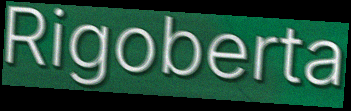
Rigoberta